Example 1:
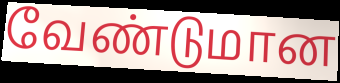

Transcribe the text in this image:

வேண்டுமான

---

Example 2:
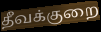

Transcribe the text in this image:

தீவக்குறை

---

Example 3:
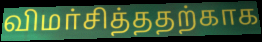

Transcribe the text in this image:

விமர்சித்ததற்காக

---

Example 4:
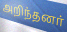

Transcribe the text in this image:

அறிந்தனர்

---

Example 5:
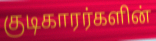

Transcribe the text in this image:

குடிகாரர்களின்